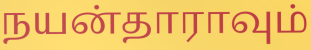
நயன்தாராவும்